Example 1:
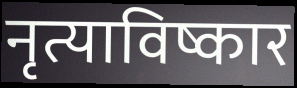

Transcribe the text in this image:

नृत्याविष्कार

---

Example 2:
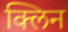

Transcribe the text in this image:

क्लिन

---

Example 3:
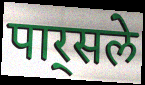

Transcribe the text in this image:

पार्सले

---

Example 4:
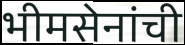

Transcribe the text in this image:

भीमसेनांची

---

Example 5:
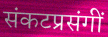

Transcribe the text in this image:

संकटप्रसंगीं